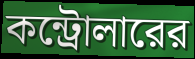
কন্ট্রোলারের